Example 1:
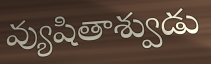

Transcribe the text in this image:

వ్యుషితాశ్వుడు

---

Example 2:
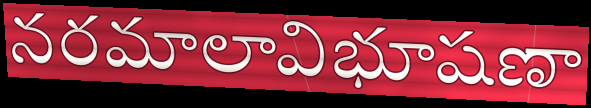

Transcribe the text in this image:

నరమాలావిభూషణా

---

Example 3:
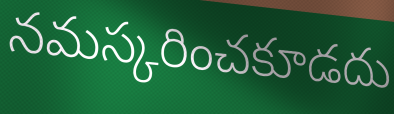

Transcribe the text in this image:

నమస్కరించకూడదు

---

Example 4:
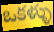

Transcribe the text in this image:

ఒకళ్ళు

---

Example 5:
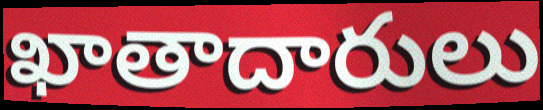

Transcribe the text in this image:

ఖాతాదారులు